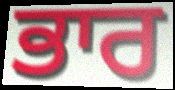
ਭਾਰ